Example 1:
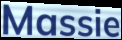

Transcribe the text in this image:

Massie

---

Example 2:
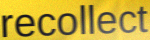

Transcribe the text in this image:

recollect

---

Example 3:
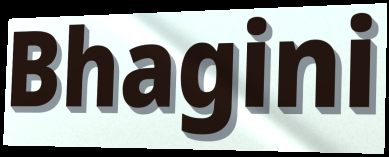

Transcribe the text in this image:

Bhagini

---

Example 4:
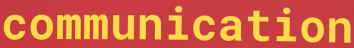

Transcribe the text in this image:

communication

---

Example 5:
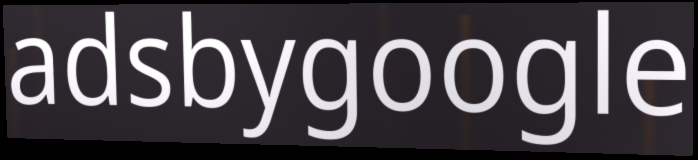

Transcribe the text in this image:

adsbygoogle